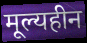
मूल्यहीन